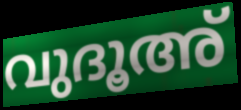
വുദൂഅ്